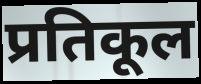
प्रतिकूल